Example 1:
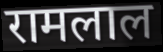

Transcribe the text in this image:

रामलाल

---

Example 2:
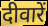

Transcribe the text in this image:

दीवारें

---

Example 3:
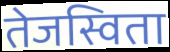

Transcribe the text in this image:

तेजस्विता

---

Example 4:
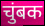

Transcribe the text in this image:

चुंबक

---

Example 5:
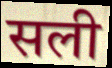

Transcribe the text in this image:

सली